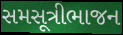
સમસૂત્રીભાજન